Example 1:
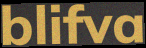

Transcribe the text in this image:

blifva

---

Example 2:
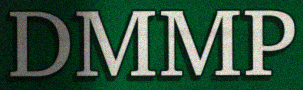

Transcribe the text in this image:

DMMP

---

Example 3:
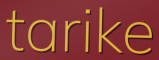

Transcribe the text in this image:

tarike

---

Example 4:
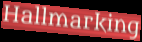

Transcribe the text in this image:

Hallmarking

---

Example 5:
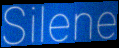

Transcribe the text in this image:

Silene